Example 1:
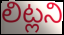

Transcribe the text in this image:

లిట్లని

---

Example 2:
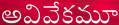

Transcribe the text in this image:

అవివేకమూ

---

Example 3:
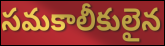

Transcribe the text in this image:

సమకాలీకులైన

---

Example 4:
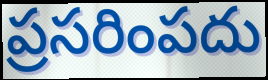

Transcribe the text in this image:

ప్రసరింపదు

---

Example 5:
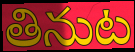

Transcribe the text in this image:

తినుట